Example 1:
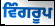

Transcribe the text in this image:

ਵਿੰਗਰੂਪ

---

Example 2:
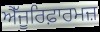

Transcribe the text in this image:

ਐੱਜੂਰਿਫ਼ਾਰਮਜ਼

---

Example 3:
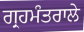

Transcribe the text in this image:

ਗ੍ਰਹਮੰਤਰਾਲੇ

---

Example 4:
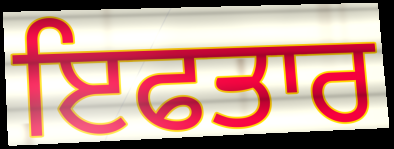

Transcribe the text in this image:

ਇਫਤਾਰ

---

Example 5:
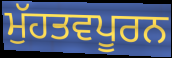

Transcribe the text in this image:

ਮੁੱਹਤਵਪੂਰਨ